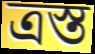
ত্রস্ত